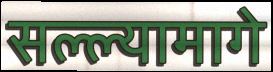
सल्ल्यामागे